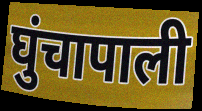
घुंचापाली